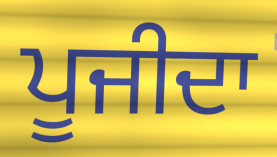
ਪੂਜੀਦਾ